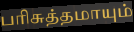
பரிசுத்தமாயும்